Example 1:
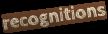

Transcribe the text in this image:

recognitions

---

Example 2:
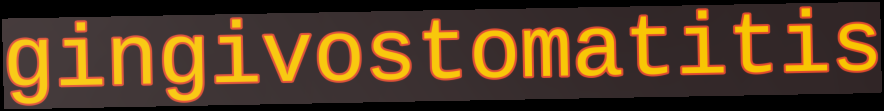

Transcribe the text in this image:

gingivostomatitis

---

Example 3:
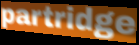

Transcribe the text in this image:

partridge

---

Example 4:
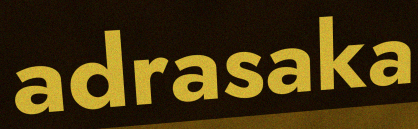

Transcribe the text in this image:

adrasaka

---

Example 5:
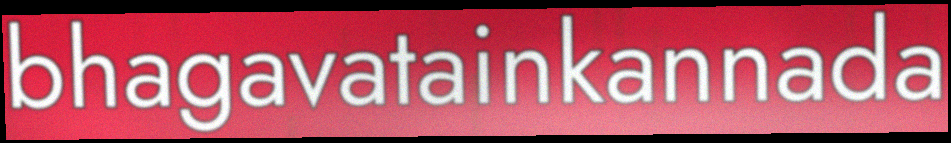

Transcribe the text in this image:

bhagavatainkannada